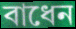
বাধেন